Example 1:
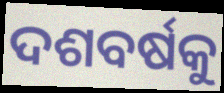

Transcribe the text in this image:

ଦଶବର୍ଷକୁ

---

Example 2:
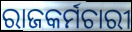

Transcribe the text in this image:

ରାଜକର୍ମଚାରୀ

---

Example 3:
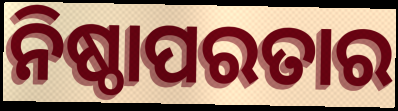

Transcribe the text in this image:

ନିଷ୍ଠାପରତାର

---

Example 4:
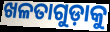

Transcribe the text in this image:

ଖଳତାଗୁଡ଼ାକୁ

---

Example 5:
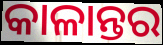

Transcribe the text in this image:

କାଳାନ୍ତର